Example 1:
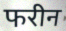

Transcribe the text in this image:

फरीन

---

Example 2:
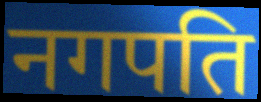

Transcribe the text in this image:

नगपति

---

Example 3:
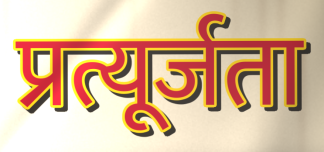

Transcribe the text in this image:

प्रत्यूर्जता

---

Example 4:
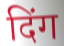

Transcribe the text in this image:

दिंग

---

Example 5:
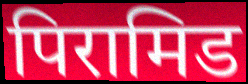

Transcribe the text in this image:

पिरामिड